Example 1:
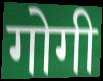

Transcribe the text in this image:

गोगी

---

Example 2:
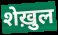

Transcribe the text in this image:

शेख़ुल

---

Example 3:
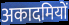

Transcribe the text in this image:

अकादमियों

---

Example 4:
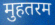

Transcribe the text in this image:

मुहतरम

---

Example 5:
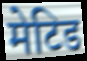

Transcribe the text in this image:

मेटिड